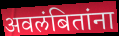
अवलंबितांना